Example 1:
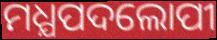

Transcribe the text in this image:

ମଧ୍ଯପଦଲୋପୀ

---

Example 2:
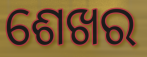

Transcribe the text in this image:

ଶେଖର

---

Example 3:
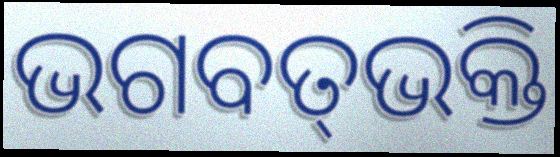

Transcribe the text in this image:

ଭଗବତ୍‌ଭକ୍ତି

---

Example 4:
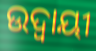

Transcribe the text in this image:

ଉଦ୍ବାୟୀ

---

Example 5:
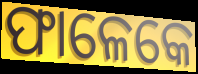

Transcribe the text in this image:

ଫାଳେକେ